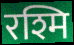
रश्मि